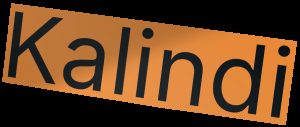
Kalindi